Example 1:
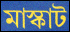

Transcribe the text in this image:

মাস্কাট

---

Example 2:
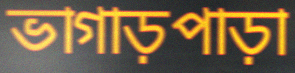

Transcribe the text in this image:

ভাগাড়পাড়া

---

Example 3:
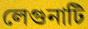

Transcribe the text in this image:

লেগুনাটি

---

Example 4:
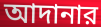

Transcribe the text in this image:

আদানার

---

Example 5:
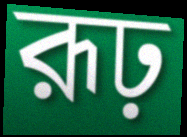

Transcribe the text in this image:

রূঢ়